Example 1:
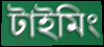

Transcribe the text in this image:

টাইমিং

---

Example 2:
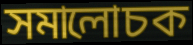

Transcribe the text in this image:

সমালোচক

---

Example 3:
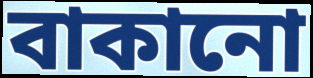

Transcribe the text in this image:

বাকানো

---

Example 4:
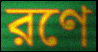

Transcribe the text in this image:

রণে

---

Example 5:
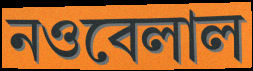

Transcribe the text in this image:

নওবেলাল